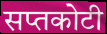
सप्तकोटी